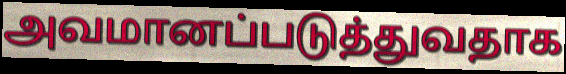
அவமானப்படுத்துவதாக